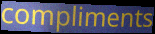
compliments